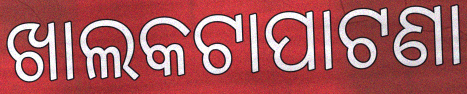
ଖାଲକଟାପାଟଣା